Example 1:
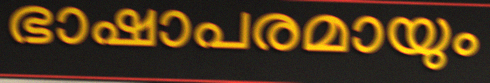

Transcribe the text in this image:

ഭാഷാപരമായും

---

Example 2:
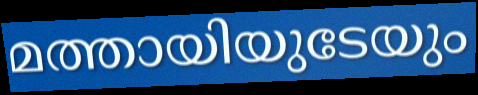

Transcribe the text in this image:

മത്തായിയുടേയും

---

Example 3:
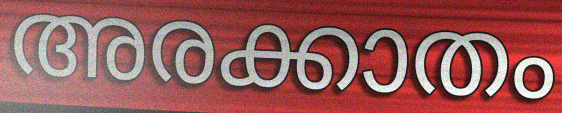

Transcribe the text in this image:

അരക്കാതം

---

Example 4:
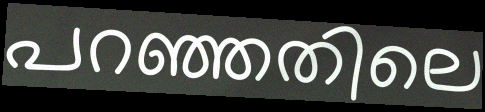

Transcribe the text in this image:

പറഞ്ഞതിലെ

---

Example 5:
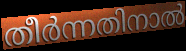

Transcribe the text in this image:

തീർന്നതിനാൽ